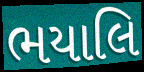
ભયાલિ